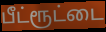
பீட்ரூட்டை